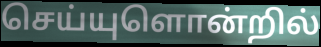
செய்யுளொன்றில்